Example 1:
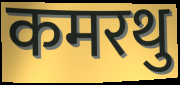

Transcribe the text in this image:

कमरथु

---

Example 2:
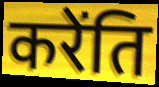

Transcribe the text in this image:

करेंति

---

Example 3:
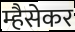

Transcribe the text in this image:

म्हैसेकर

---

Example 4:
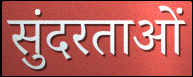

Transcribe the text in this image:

सुंदरताओं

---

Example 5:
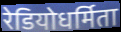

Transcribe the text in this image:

रेडियोधर्मिता